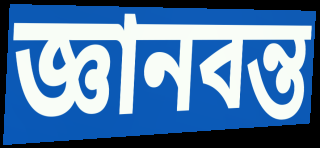
জ্ঞানবন্ত